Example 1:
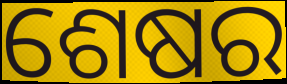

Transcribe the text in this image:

ଶେଷର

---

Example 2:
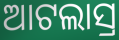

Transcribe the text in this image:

ଆଟଲାସ୍ର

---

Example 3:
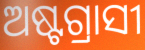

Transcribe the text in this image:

ଅଷ୍ଟଗ୍ରାସୀ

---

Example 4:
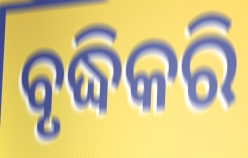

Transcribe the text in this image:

ବୃଦ୍ଧିକରି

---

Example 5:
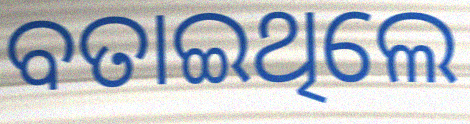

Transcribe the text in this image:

ବତାଇଥିଲେ